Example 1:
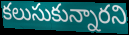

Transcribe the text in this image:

కలుసుకున్నారని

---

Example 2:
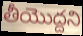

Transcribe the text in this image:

తీయొద్దని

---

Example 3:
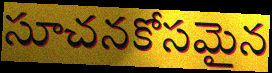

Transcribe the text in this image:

సూచనకోసమైన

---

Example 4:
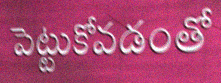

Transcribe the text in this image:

పెట్టుకోవడంతో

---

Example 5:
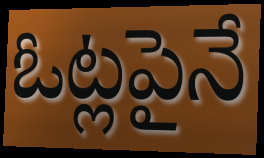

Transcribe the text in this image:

ఓట్లపైనే